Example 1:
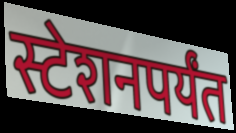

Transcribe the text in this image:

स्टेशनपर्यंत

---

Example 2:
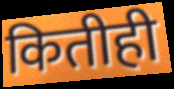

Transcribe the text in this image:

कितीही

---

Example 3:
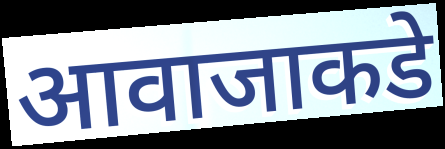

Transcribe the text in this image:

आवाजाकडे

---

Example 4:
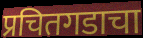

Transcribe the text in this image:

प्रचितगडाचा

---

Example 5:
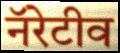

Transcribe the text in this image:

नॅरेटीव